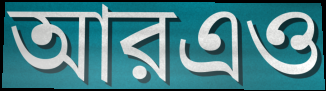
আরএও